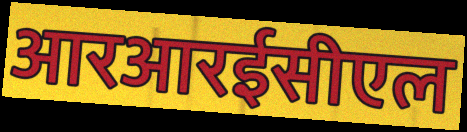
आरआरईसीएल